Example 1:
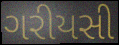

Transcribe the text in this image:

ગરીયસી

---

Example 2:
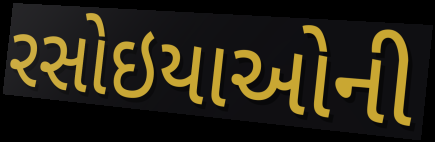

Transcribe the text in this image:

રસોઇયાઓની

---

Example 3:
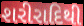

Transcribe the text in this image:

શરીરાદિથી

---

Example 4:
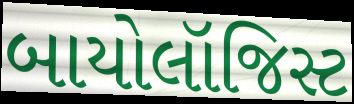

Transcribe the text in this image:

બાયોલૉજિસ્ટ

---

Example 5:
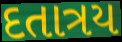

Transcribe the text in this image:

દતાત્રય